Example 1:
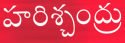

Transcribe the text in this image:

హరిశ్చంద్రు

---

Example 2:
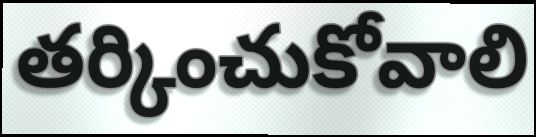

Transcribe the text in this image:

తర్కించుకోవాలి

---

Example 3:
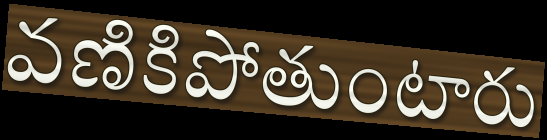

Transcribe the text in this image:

వణికిపోతుంటారు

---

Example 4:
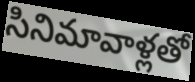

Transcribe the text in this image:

సినిమావాళ్లతో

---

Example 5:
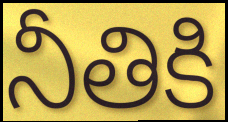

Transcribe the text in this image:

నీతికి